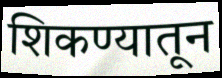
शिकण्यातून